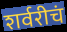
शर्वरीचं